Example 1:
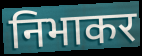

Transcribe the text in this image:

निभाकर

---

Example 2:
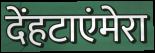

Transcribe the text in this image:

देंहटाएंमेरा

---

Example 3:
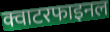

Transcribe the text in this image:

क्वाटरफाइनल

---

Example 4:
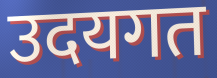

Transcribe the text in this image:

उदयगत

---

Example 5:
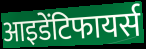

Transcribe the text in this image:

आइडेंटिफायर्स